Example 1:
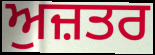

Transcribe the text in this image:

ਅੁਜ਼ਤਰ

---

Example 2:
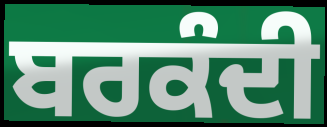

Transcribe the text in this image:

ਬਰਕੰਦੀ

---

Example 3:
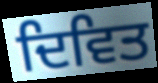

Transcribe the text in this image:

ਦਿਵਿਤ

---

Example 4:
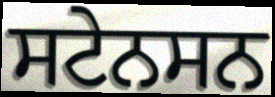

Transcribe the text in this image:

ਸਟੇਨਸਨ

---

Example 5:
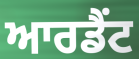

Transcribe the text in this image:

ਆਰਡੈਂਟ